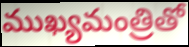
ముఖ్యమంత్రితో